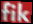
fik